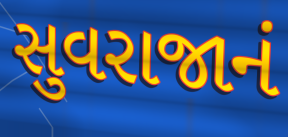
સુવરાજાનં